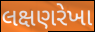
લક્ષણરેખા